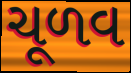
ચૂળવ